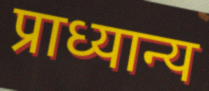
प्राध्यान्य